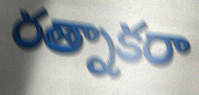
రత్నాకరా